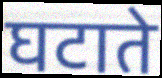
घटाते